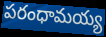
పరంధామయ్య